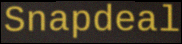
Snapdeal